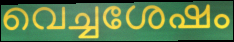
വെച്ചശേഷം